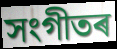
সংগীতৰ